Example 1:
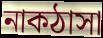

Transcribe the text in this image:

নাকঠাসা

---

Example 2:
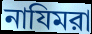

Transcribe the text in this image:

নাযিমরা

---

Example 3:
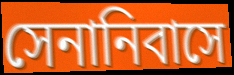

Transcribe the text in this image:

সেনানিবাসে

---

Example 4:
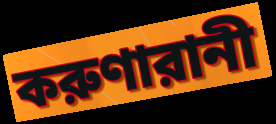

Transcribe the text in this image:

করুণারানী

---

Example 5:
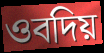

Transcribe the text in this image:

ওবদিয়